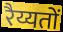
रैय्यतों